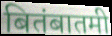
बितंबातमी